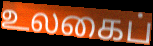
உலகைப்